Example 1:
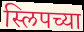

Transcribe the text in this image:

स्लिपच्या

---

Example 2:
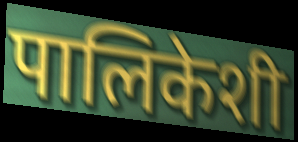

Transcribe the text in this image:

पालिकेशी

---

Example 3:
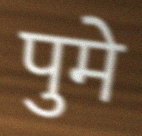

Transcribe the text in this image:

पुमे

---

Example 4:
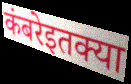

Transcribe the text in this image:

कंबरेइतक्या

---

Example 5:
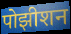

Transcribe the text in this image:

पोझीशन